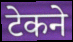
टेकने